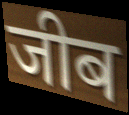
जीब